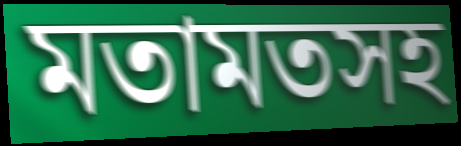
মতামতসহ